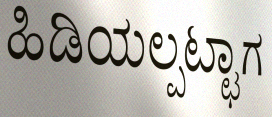
ಹಿಡಿಯಲ್ಪಟ್ಟಾಗ